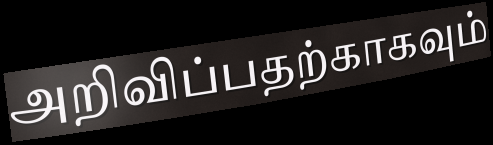
அறிவிப்பதற்காகவும்